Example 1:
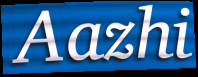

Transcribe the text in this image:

Aazhi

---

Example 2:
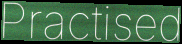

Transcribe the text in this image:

Practised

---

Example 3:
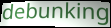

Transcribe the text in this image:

debunking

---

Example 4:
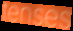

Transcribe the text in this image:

tenses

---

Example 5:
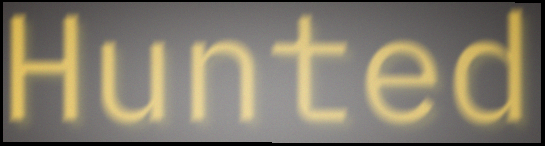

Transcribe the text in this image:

Hunted